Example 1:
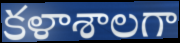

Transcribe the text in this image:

కళాశాలగా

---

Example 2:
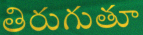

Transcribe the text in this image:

తిరుగుతూ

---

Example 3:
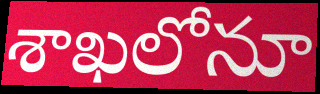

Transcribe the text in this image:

శాఖలోనూ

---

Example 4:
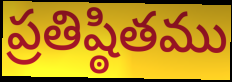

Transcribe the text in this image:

ప్రతిష్ఠితము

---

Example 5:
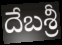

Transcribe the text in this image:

దేబశ్రీ